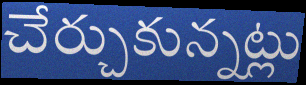
చేర్చుకున్నట్లు